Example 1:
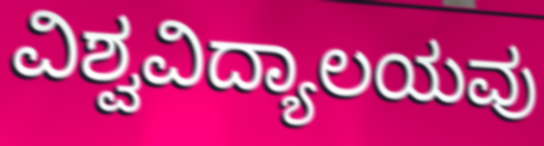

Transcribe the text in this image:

ವಿಶ್ವವಿದ್ಯಾಲಯವು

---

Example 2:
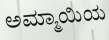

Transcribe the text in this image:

ಅಮ್ಮಾಯಿಯ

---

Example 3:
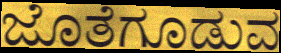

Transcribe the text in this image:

ಜೊತೆಗೂಡುವ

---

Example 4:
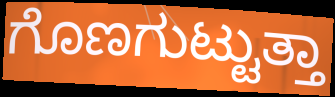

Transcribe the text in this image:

ಗೊಣಗುಟ್ಟುತ್ತಾ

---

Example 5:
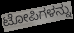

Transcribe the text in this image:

ಟೋಪಿಗಳನ್ನು